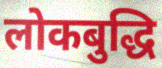
लोकबुद्धि